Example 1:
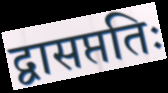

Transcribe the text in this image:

द्वासप्ततिः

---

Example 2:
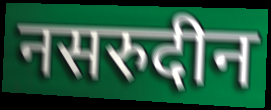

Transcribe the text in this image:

नसरुदीन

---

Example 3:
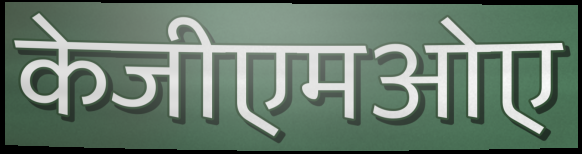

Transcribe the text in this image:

केजीएमओए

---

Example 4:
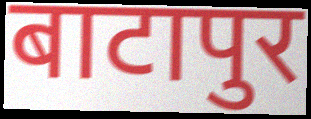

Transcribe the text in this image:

बाटापुर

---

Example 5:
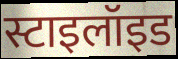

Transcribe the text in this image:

स्टाइलॉइड